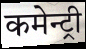
कमेन्ट्री